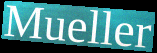
Mueller